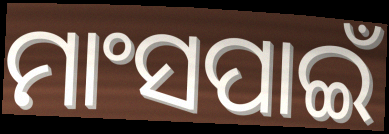
ମାଂସପାଇଁ